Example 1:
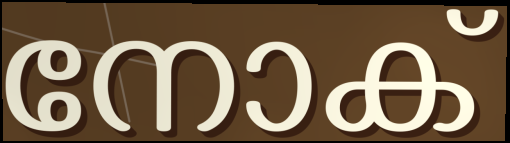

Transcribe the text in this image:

നോക്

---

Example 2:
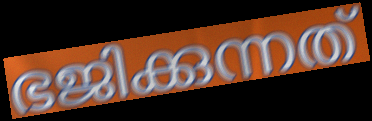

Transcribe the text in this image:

ഭജിക്കുന്നത്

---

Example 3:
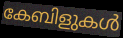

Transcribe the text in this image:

കേബിളുകൾ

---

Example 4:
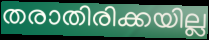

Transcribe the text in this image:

തരാതിരിക്കയില്ല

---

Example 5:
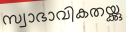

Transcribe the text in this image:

സ്വാഭാവികതയ്ക്കു